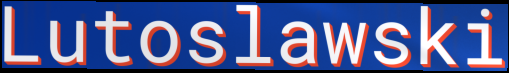
Lutoslawski